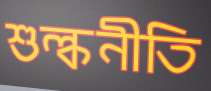
শুল্কনীতি